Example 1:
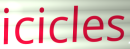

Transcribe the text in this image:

icicles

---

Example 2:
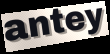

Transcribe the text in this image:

antey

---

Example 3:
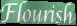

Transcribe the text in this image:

Flourish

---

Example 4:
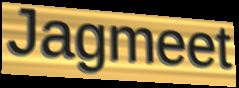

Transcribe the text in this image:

Jagmeet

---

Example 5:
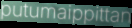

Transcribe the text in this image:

putumaippittan